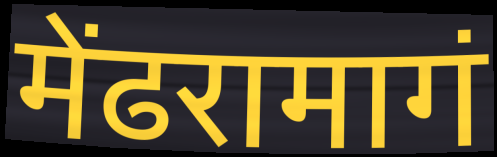
मेंढरामागं